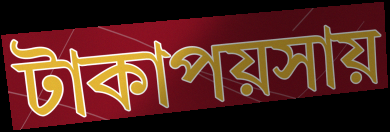
টাকাপয়সায়